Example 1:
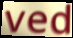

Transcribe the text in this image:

ved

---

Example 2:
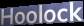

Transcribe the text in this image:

Hoolock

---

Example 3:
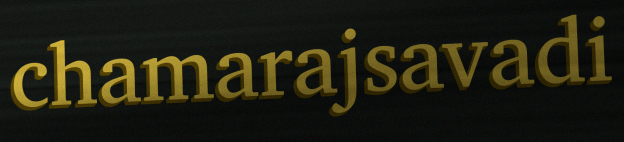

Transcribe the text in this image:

chamarajsavadi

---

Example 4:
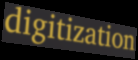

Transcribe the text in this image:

digitization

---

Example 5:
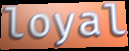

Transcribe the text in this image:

loyal